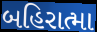
બહિરાત્મા